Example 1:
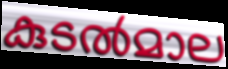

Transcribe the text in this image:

കുടൽമാല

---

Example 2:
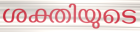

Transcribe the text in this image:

ശക്തിയുടെ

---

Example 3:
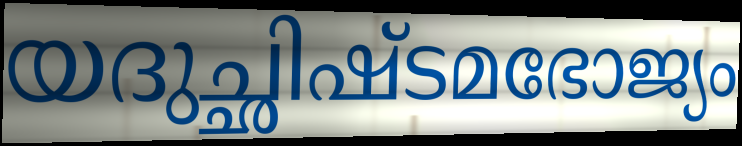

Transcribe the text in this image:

യദുച്ഛിഷ്ടമഭോജ്യം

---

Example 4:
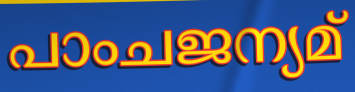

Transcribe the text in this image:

പാംചജന്യമ്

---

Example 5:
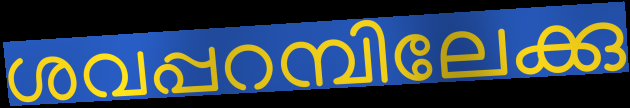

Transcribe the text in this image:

ശവപ്പറമ്പിലേക്കു